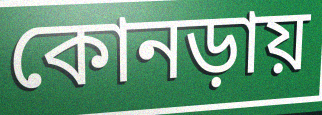
কোনড়ায়